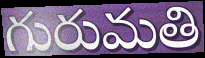
గురుమతి